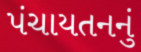
પંચાયતનનું